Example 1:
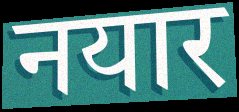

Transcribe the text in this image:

नयार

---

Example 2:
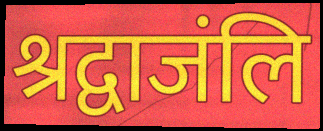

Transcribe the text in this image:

श्रद्वाजंलि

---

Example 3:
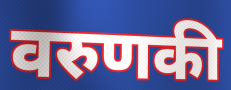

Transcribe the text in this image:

वरुणकी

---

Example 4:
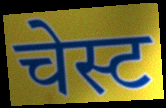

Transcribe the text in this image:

चेस्ट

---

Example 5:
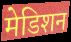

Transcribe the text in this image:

मेडिशन